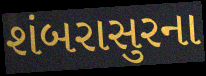
શંબરાસુરના